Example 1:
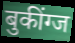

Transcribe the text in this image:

बुकींग्ज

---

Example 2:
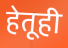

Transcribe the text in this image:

हेतूही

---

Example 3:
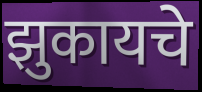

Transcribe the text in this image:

झुकायचे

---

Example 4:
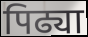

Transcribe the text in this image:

पिढ्या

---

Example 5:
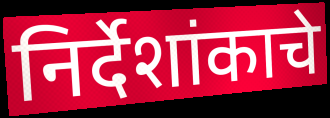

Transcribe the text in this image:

निर्देशांकाचे